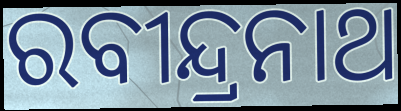
ରବୀନ୍ଦ୍ରନାଥ